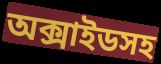
অক্সাইডসহ